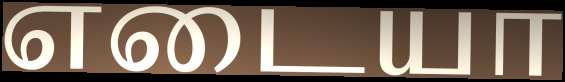
எடையா